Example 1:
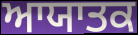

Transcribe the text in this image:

ਆਯਾਤਕ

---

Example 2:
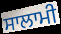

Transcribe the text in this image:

ਸਾਲਾਮੀ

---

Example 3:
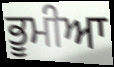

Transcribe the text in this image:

ਭੂਮੀਆ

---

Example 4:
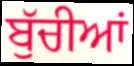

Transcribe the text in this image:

ਬੁੱਚੀਆਂ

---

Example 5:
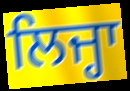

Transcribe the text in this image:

ਲਿਜ੍ਹਾ